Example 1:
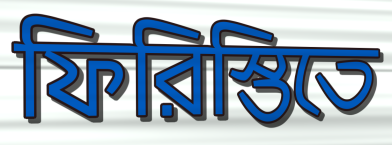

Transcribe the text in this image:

ফিরিস্তিতে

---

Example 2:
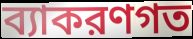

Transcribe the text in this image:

ব্যাকরণগত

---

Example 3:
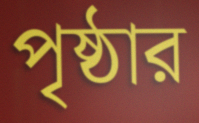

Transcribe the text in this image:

পৃষ্ঠার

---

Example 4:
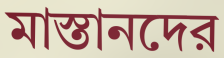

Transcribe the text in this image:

মাস্তানদের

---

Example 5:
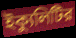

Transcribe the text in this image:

ইক্যুলিটির